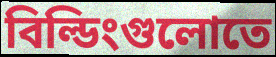
বিল্ডিংগুলোতে